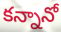
కన్నానో